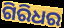
ଗିରିଧର